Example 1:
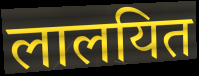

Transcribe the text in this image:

लालयित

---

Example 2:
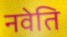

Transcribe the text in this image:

नवेति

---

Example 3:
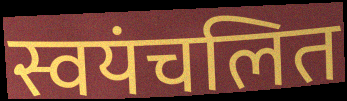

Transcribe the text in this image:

स्वयंचलित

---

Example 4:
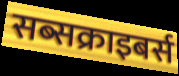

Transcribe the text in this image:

सब्सक्राइबर्स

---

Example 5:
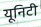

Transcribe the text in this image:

यूनिटी